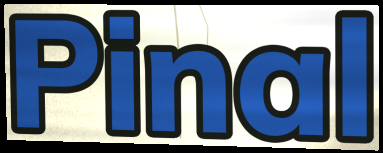
Pinal